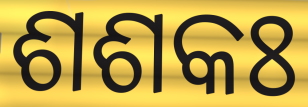
ଶଶକଃ